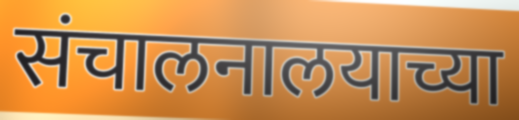
संचालनालयाच्या